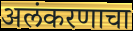
अलंकरणाचा